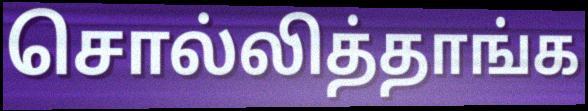
சொல்லித்தாங்க